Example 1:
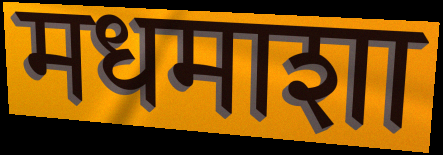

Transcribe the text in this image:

मधमाशा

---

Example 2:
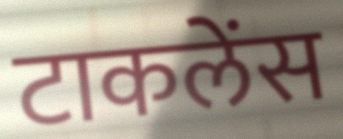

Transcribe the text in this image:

टाकलेंस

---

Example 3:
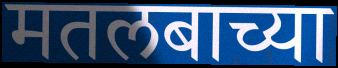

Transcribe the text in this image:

मतलबाच्या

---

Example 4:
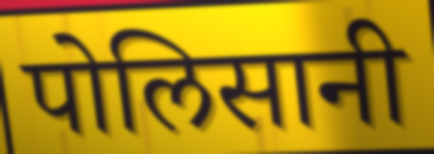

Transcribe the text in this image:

पोलिसानी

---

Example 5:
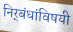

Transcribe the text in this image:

निर्बंधांविषयी